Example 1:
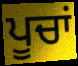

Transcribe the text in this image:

ਪੂਚਾਂ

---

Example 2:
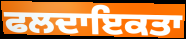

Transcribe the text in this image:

ਫਲਦਾਇਕਤਾ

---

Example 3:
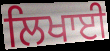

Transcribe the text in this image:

ਲਿਖਾਈ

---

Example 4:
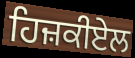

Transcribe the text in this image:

ਹਿਜ਼ਕੀਏਲ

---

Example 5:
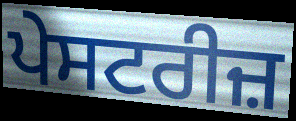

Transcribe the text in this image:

ਪੇਸਟਰੀਜ਼